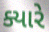
ક્યારે